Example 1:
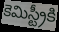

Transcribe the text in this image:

కెమిస్ట్రీకి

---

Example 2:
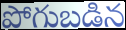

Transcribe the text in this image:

పోగుబడిన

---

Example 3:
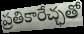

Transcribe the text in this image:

ప్రతికారేచ్ఛతో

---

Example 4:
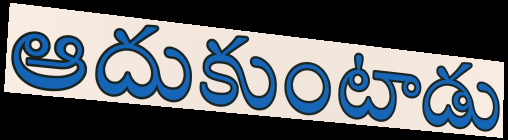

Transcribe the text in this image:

ఆదుకుంటాడు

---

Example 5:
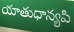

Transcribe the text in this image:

యాతుధాన్యపి